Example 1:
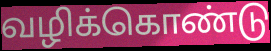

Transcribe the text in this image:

வழிக்கொண்டு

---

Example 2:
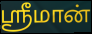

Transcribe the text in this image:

ஸ்ரீமான்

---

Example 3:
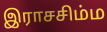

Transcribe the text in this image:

இராசசிம்ம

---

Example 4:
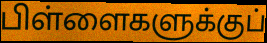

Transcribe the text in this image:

பிள்ளைகளுக்குப்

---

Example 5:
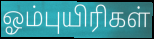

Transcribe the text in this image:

ஓம்புயிரிகள்